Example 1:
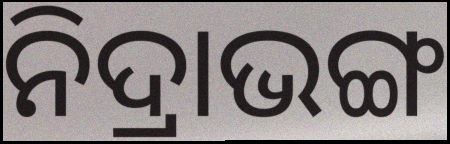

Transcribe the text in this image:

ନିଦ୍ରାଭଙ୍ଗ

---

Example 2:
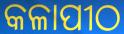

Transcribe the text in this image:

କଳାପୀଠ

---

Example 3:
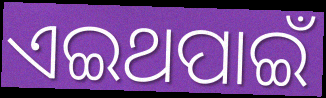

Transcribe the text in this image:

ଏଇଥପାଇଁ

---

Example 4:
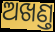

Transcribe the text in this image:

ଅଖଣ୍ତ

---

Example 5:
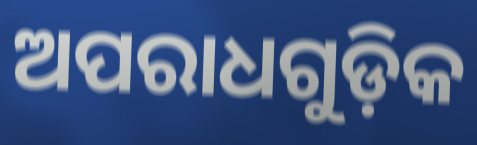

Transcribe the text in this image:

ଅପରାଧଗୁଡ଼ିକ